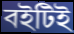
বইটিই